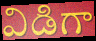
విడిగా